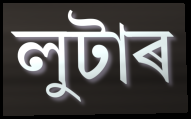
লুটাৰ